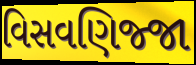
વિસવણિજ્જા